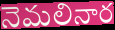
నెమలినార